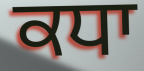
ਕਧਾ